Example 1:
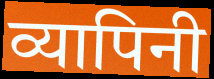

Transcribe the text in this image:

व्यापिनी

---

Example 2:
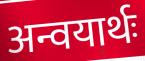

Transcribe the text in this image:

अन्वयार्थः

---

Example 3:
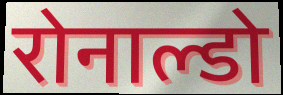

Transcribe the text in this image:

रोनाल्डो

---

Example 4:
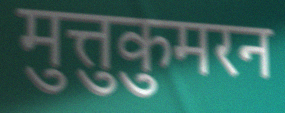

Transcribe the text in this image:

मुत्तुकुमरन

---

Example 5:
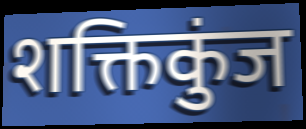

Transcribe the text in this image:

शक्तिकुंज